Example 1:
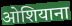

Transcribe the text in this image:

ओशियाना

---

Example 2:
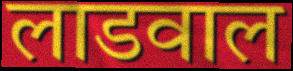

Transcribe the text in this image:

लाडवाल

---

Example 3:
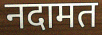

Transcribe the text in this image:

नदामत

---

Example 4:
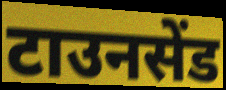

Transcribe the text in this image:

टाउनसेंड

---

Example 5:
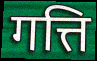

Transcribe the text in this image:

गत्ति